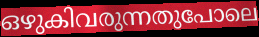
ഒഴുകിവരുന്നതുപോലെ